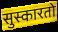
सुस्कारतो